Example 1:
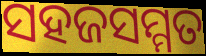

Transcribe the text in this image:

ସହଜସମ୍ମତ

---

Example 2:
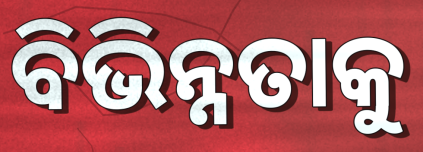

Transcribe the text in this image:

ବିଭିନ୍ନତାକୁ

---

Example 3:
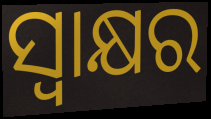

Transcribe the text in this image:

ସ୍ଵାକ୍ଷର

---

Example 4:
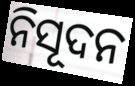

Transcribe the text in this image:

ନିସୂଦନ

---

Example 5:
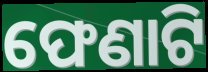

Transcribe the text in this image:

ଫେଣାଟି